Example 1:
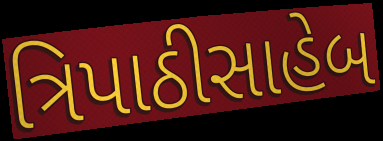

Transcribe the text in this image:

ત્રિપાઠીસાહેબ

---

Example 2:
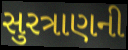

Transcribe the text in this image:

સુરત્રાણની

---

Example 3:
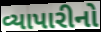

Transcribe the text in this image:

વ્યાપારીનો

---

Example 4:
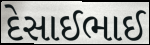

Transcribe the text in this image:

દેસાઈભાઈ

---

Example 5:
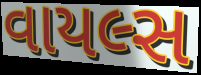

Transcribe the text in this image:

વાયલ્સ